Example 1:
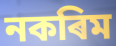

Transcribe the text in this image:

নকৰিম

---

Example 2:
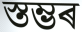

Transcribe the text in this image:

স্তম্ভৰ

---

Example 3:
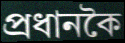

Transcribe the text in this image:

প্ৰধানকৈ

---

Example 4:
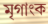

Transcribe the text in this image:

মৃগাংক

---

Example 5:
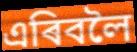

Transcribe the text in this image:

এৰিবলৈ